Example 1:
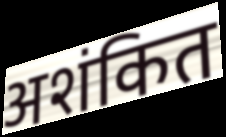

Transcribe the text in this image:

अशंकित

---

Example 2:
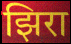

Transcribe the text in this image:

झिरा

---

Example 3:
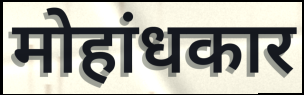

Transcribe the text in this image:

मोहांधकार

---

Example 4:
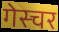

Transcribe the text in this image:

गेस्चर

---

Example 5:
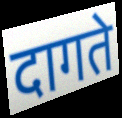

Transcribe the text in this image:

दागते